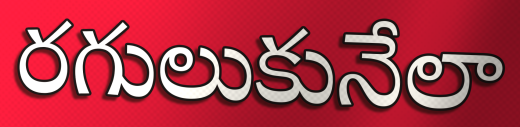
రగులుకునేలా